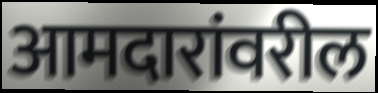
आमदारांवरील